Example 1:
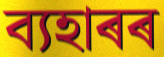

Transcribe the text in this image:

ব্যহাৰৰ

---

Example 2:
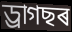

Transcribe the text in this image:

ড্ৰাগছৰ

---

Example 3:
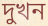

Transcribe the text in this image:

দুখন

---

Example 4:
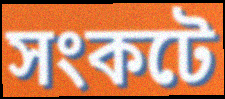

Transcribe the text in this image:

সংকটে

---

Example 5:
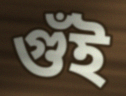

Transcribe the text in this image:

গুঁই